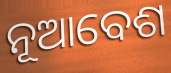
ନୂଆବେଶ